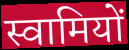
स्वामियों